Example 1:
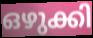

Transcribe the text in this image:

ഒഴുക്കി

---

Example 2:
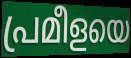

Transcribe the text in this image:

പ്രമീളയെ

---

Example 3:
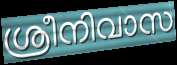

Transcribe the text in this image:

ശ്രീനിവാസ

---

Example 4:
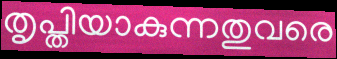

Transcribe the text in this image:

തൃപ്തിയാകുന്നതുവരെ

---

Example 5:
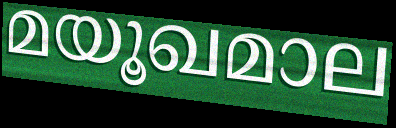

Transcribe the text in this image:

മയൂഖമാല